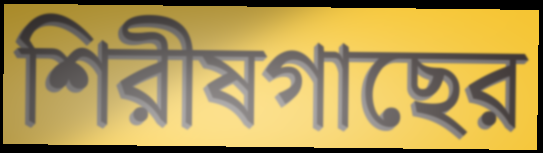
শিরীষগাছের